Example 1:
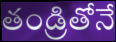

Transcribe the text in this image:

తండ్రితోనే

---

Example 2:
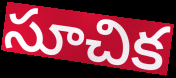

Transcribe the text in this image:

సూచిక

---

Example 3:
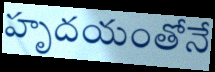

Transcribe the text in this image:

హృదయంతోనే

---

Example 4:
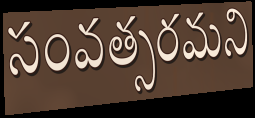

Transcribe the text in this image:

సంవత్సరమని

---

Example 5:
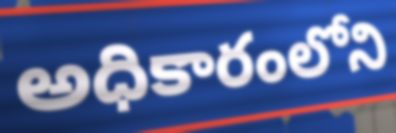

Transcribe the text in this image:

అధికారంలోని